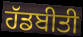
ਹੱਡਬੀਤੀ